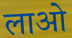
लाओ